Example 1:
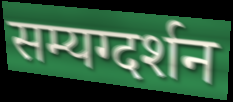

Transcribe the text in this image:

सम्यग्दर्शन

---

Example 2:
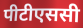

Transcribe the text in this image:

पीटीएससी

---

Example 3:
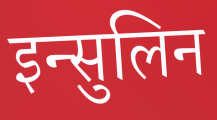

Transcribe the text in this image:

इन्सुलिन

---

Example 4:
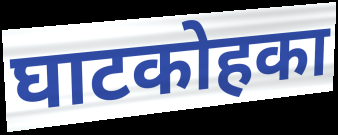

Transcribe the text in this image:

घाटकोहका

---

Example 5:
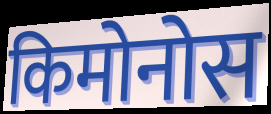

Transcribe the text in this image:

किमोनोस